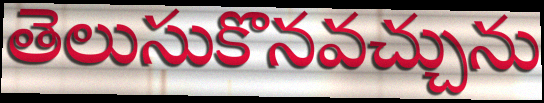
తెలుసుకొనవచ్చును